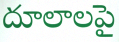
దూలాలపై